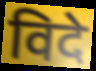
विदे